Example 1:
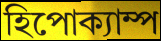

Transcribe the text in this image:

হিপোক্যাম্প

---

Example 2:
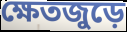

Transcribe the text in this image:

ক্ষেতজুড়ে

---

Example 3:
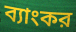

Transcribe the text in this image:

ব্যাংকর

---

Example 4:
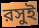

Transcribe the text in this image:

রসুই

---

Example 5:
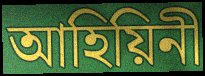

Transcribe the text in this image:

আহিয়িনী